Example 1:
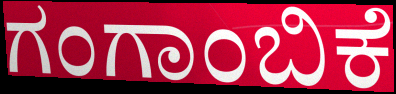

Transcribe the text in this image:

ಗಂಗಾಂಬಿಕೆ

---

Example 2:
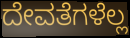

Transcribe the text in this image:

ದೇವತೆಗಳೆಲ್ಲ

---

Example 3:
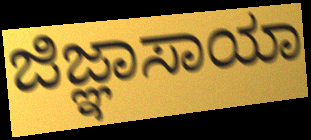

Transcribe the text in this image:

ಜಿಜ್ಞಾಸಾಯಾ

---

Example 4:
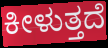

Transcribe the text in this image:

ಕೀಳುತ್ತದೆ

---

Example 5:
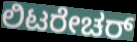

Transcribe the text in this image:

ಲಿಟರೇಚರ್